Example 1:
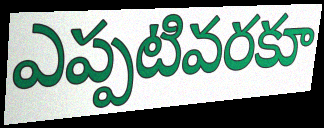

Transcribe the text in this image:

ఎప్పటివరకూ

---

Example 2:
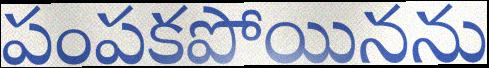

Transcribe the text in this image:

పంపకపోయినను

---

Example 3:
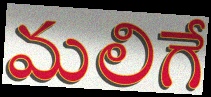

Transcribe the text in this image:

మలిగే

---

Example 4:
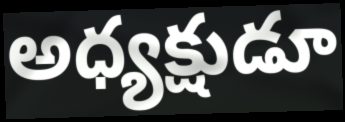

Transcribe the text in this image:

అధ్యక్షుడూ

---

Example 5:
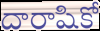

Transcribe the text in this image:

దారాషికో